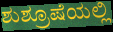
ಶುಶ್ರೂಷೆಯಲ್ಲಿ